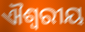
ଐଶ୍ୱରୀୟ